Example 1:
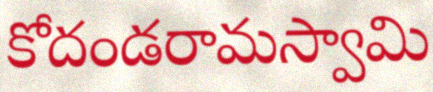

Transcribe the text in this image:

కోదండరామస్వామి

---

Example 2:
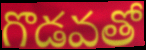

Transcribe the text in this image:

గొడవతో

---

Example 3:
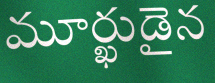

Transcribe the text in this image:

మూర్ఖుడైన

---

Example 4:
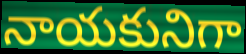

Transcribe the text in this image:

నాయకునిగా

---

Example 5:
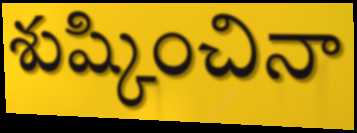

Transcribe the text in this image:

శుష్కించినా